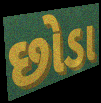
છોડા